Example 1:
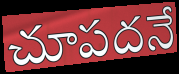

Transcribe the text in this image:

చూపదనే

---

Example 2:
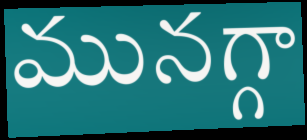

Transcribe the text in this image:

మునగ్గా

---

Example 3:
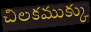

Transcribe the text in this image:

చిలకముక్కు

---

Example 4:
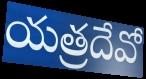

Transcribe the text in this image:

యత్రదేవో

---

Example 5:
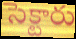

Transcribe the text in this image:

సెక్టారు